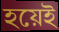
হয়েই